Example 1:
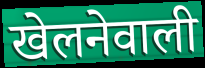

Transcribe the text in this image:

खेलनेवाली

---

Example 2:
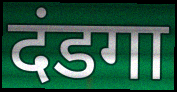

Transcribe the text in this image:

दंडगा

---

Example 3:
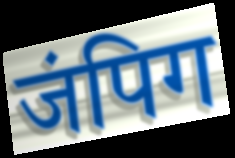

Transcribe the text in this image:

जंपिग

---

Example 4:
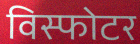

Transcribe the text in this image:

विस्फोटर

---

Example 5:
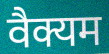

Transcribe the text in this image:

वैक्यम